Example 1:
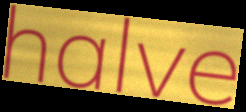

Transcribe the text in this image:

halve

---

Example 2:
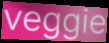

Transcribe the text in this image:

veggie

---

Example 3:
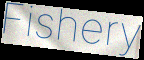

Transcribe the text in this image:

Fishery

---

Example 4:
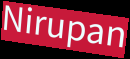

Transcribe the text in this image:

Nirupan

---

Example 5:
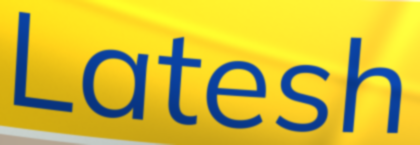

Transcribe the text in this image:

Latesh